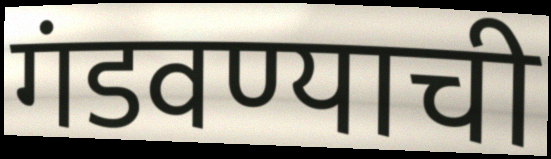
गंडवण्याची